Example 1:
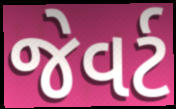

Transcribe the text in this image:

જેવર્ટ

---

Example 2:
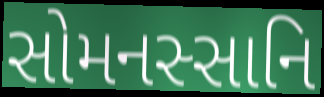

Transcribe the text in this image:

સોમનસ્સાનિ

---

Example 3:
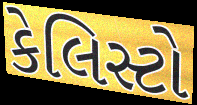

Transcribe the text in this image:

કેલિસ્ટો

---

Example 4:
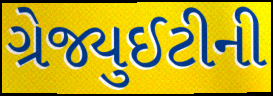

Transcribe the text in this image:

ગ્રેજ્યુઈટીની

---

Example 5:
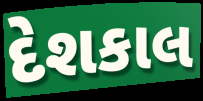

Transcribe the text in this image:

દેશકાલ